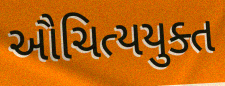
ઔચિત્યયુક્ત